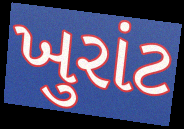
ખુરાંટ